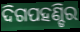
ଦିଗପହଣ୍ଡିର